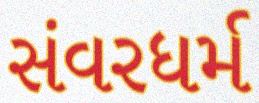
સંવરધર્મ